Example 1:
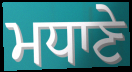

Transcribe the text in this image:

ਮਧਾਣੇ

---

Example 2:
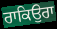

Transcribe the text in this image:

ਰਾਕਿਉਰਾ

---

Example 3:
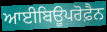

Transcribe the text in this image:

ਆਈਬਿਊਪਰੋਫ਼ੈਨ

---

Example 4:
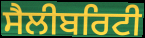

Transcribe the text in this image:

ਸੈਲੀਬਰਿਟੀ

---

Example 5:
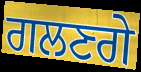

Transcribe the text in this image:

ਗਲਣਗੇ